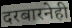
दरबारनेही